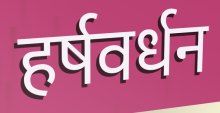
हर्षवर्धन